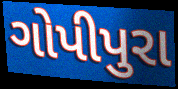
ગોપીપુરા